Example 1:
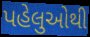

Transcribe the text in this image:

પહેલુઓથી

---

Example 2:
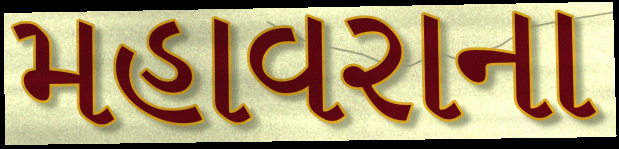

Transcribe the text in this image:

મહાવરાના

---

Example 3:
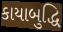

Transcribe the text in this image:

કાયાબુદ્ધિ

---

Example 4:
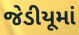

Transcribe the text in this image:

જેડીયૂમાં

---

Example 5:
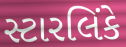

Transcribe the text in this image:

સ્ટારલિંકે